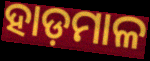
ହାଡ଼ମାଳ